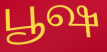
பூஷ